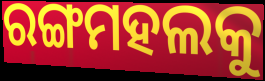
ରଙ୍ଗମହଲକୁ